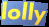
lolly